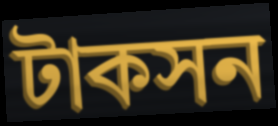
টাকসন